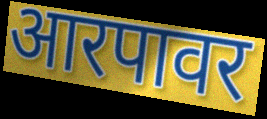
आरपावर